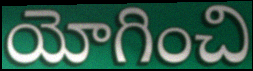
యోగించి